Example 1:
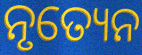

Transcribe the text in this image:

ନୃତ୍ୟେନ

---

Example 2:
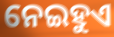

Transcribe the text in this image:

ନେଇହୁଏ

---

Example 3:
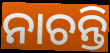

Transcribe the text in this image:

ନାଚନ୍ତି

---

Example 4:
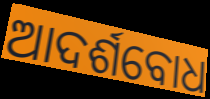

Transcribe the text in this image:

ଆଦର୍ଶବୋଧ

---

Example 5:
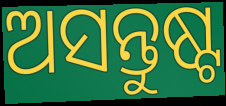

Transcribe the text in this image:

ଅସନ୍ତୁଷ୍ଟ